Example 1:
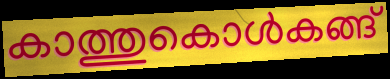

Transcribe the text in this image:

കാത്തുകൊൾകങ്ങ്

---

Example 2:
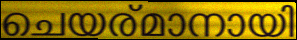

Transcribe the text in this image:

ചെയര്മാനായി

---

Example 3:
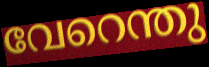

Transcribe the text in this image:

വേറെന്തു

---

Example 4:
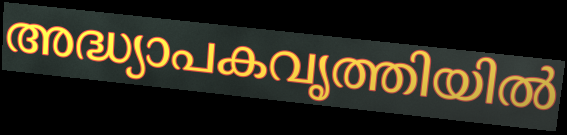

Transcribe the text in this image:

അദ്ധ്യാപകവൃത്തിയിൽ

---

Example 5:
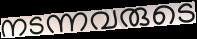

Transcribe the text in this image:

നടന്നവരുടെ